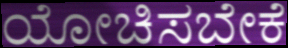
ಯೋಚಿಸಬೇಕೆ